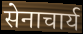
सेनाचार्य